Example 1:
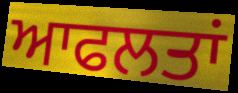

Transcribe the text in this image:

ਆਫਲਤਾਂ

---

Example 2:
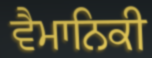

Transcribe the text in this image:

ਵੈਮਾਨਿਕੀ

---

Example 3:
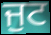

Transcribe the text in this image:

ਜੁਟ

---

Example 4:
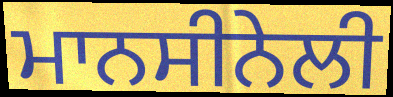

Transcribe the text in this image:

ਮਾਨਸੀਨੇਲੀ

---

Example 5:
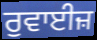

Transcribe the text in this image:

ਰੁਵਾਈਜ਼